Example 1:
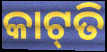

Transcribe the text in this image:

କାଟ୍‍ତି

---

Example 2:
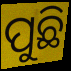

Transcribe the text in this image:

ପୁଛି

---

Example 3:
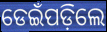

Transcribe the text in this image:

ଡେଇଁପଡ଼ିଲେ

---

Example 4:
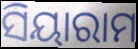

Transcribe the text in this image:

ସିୟାରାମ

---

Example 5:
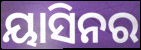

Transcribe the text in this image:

ୟାସିନର